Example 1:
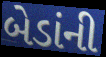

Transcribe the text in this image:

બેડાંની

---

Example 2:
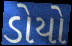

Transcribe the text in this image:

ડોયો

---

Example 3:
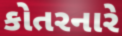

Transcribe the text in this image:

કોતરનારે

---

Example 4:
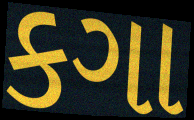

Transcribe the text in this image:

કગા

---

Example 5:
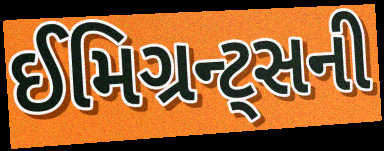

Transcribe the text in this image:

ઈમિગ્રન્ટ્સની